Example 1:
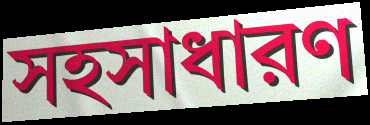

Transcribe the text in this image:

সহসাধারণ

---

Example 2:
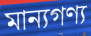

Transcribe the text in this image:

মান্যগণ্য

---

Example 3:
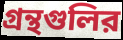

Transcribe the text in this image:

গ্রন্থগুলির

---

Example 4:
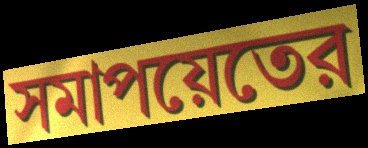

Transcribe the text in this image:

সমাপয়েতের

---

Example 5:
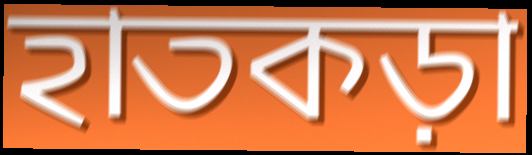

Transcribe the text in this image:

হাতকড়া